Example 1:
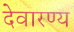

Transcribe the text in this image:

देवारण्य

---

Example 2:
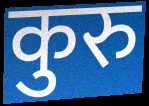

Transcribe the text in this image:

कुरु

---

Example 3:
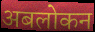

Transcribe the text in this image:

अबलोकन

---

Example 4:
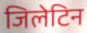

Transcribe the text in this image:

जिलेटिन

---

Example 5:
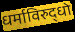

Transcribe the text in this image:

धर्माविरुद्धो